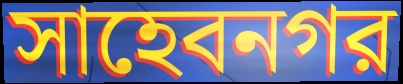
সাহেবনগর